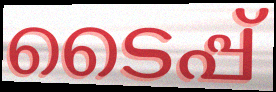
ടൈപ്പ്